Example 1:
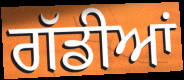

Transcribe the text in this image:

ਗੱਡੀਆਂ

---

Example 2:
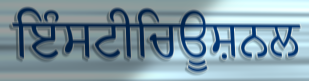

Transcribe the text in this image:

ਇੰਸਟੀਚਿਊਸ਼ਨਲ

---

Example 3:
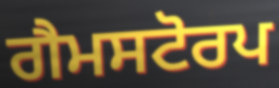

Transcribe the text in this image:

ਗੈਮਸਟੋਰਪ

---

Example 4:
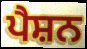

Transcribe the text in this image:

ਪੈਸ਼ਨ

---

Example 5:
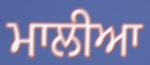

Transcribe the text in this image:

ਮਾਲੀਆ